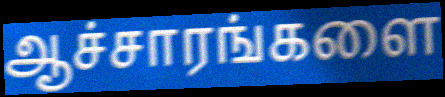
ஆச்சாரங்களை